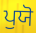
ਪੁਯੋ